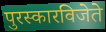
पुरस्कारविजेते